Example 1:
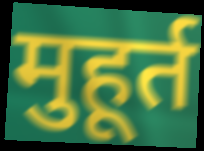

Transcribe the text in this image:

मुहूर्त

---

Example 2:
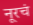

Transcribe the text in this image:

नूरचं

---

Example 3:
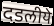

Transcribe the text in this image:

दडलीये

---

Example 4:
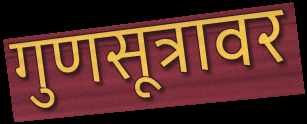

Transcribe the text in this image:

गुणसूत्रावर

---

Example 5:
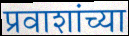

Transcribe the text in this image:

प्रवाशांच्या